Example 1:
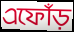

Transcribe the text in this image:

এফোঁড়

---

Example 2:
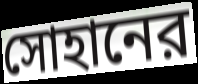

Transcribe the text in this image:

সোহানের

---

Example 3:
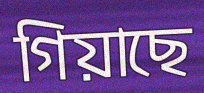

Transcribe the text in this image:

গিয়াছে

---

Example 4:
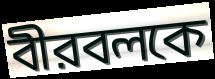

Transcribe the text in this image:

বীরবলকে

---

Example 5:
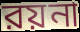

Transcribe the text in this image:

রয়না